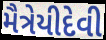
મૈત્રેયીદેવી